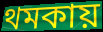
থমকায়